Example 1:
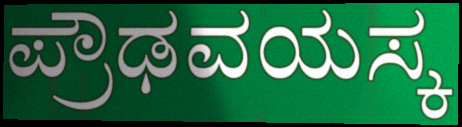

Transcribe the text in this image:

ಪ್ರೌಢವಯಸ್ಕ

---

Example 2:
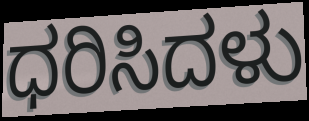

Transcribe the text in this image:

ಧರಿಸಿದಳು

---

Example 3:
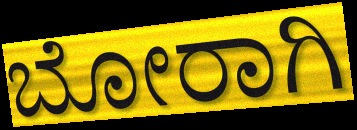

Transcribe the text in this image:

ಬೋರಾಗಿ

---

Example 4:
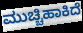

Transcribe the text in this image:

ಮುಚ್ಚಿಹಾಕಿದೆ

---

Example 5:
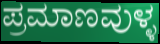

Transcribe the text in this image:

ಪ್ರಮಾಣವುಳ್ಳ